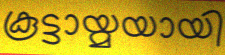
കൂട്ടായ്മയായി